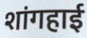
शांगहाई